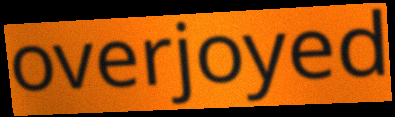
overjoyed